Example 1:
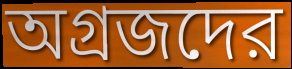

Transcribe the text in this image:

অগ্রজদের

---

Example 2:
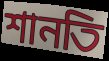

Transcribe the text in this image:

শানতি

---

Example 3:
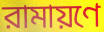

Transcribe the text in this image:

রামায়ণে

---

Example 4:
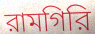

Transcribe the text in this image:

রামগিরি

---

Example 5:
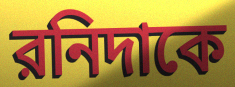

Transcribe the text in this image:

রনিদাকে